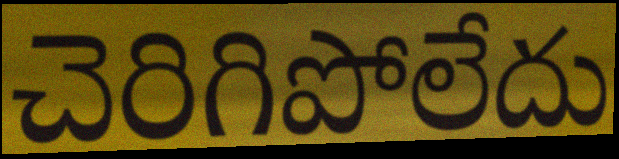
చెరిగిపోలేదు